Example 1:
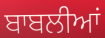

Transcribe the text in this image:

ਬਾਬਲੀਆਂ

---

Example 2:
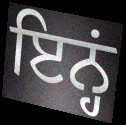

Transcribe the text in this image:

ਇਨ੍ਹਂ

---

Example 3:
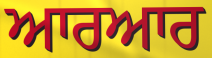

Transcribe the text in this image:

ਆਰਆਰ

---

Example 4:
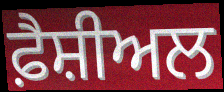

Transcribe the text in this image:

ਫ਼ੈਸ਼ੀਅਲ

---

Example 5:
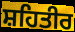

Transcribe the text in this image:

ਸ਼ਹਿਤੀਰ